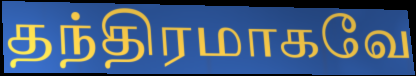
தந்திரமாகவே